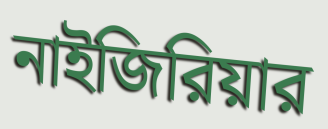
নাইজিরিয়ার